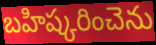
బహిష్కరించెను